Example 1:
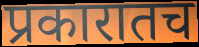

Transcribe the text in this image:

प्रकारातच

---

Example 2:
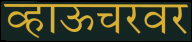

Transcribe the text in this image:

व्हाऊचरवर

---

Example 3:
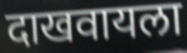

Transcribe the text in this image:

दाखवायला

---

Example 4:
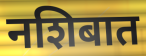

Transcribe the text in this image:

नशिबात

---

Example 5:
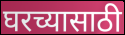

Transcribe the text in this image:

घरच्यासाठी